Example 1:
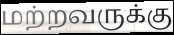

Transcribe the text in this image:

மற்றவருக்கு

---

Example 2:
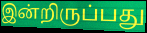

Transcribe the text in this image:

இன்றிருப்பது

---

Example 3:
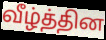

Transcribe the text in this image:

வீழ்த்தின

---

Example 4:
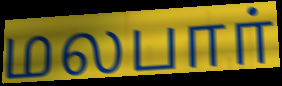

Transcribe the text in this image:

மலபார்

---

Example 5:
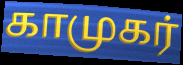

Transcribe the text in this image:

காமுகர்